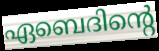
ഏബെദിന്റെ